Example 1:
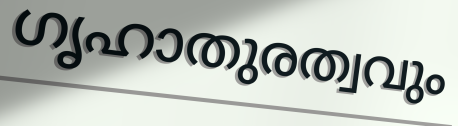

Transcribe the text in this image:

ഗൃഹാതുരത്വവും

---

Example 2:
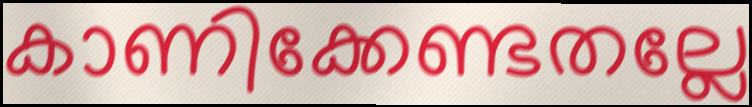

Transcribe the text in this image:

കാണിക്കേണ്ടതല്ലേ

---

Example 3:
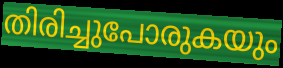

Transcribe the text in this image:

തിരിച്ചുപോരുകയും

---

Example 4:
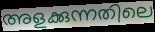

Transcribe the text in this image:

അളക്കുന്നതിലെ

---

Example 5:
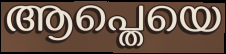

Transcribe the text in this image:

ആപ്തെയെ